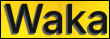
Waka